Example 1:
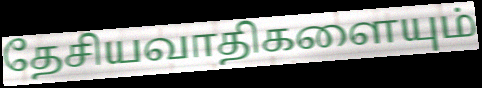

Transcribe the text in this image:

தேசியவாதிகளையும்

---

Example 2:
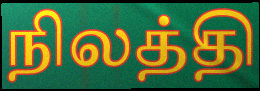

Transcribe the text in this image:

நிலத்தி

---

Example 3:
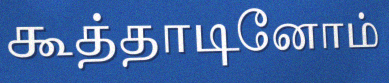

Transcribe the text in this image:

கூத்தாடினோம்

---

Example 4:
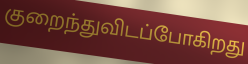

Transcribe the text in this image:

குறைந்துவிடப்போகிறது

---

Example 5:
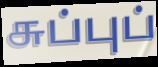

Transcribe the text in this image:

சுப்புப்